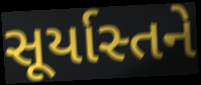
સૂર્યાસ્તને